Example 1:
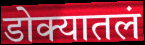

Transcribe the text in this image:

डोक्यातलं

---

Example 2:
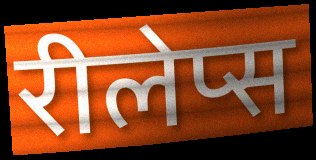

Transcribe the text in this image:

रीलेप्स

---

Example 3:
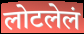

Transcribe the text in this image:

लोटलेलं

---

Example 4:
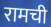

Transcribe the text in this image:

रामची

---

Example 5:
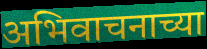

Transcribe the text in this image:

अभिवाचनाच्या